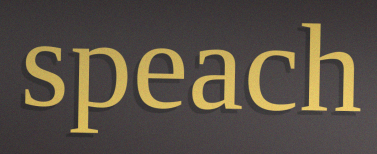
speach